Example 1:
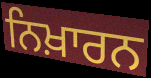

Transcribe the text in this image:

ਨਿਖ਼ਾਰਨ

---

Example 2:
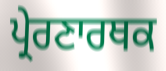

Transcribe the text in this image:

ਪ੍ਰੇਰਣਾਰਥਕ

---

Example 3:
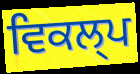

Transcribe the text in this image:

ਵਿਕਲ੍ਪ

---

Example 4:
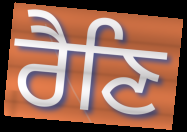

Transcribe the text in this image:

ਰੈਣਿ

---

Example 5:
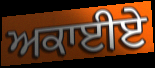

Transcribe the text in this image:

ਅਕਾਈਏ